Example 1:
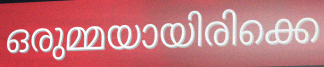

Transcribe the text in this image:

ഒരുമ്മയായിരിക്കെ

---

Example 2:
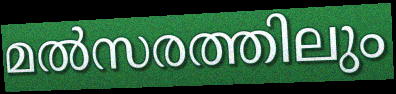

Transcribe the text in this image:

മൽസരത്തിലും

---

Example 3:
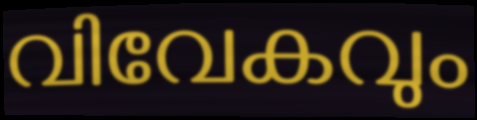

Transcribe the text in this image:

വിവേകവും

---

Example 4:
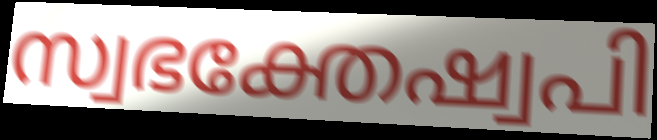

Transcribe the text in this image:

സ്വഭക്തേഷ്വപി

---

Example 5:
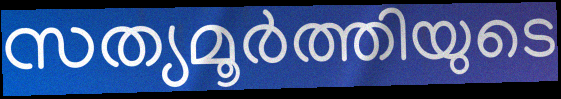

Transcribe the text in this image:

സത്യമൂർത്തിയുടെ